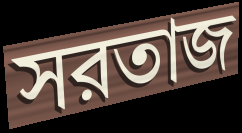
সরতাজ